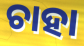
ଚାହା